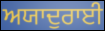
ਅਯਾਦੁਰਾਈ